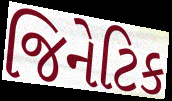
જિનેટિક